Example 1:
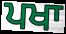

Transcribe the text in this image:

ਪਖਾ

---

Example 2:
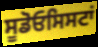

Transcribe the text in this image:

ਸੂਡੋਓਸਿਸਟਾਂ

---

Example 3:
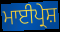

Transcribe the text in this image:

ਮਾਈਪ੍ਰੇਸ਼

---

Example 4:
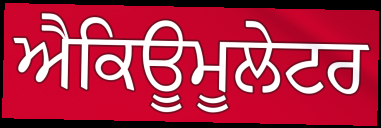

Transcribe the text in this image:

ਐਕਿਊਮੂਲੇਟਰ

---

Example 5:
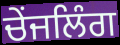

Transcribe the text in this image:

ਚੇਂਜਲਿੰਗ